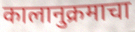
कालानुक्रमाचा